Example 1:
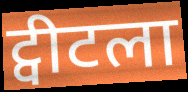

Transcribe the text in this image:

ट्वीटला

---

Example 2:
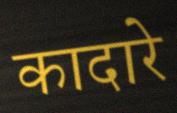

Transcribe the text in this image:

कादारे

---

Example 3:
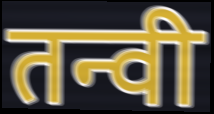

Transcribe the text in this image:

तन्वी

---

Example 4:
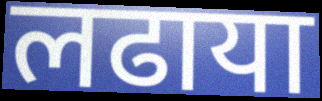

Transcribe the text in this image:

लढाया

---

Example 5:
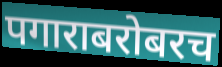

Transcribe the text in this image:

पगाराबरोबरच